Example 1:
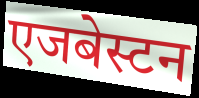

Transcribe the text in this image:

एजबेस्‍टन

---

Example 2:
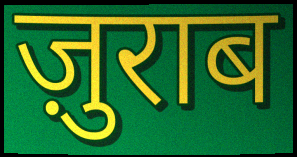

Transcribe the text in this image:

ज़ुराब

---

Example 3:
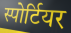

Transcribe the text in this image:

स्पोर्टियर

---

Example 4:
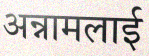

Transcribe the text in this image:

अन्नामलाई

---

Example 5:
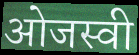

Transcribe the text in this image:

ओजस्वी